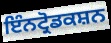
ਇੰਨਟ੍ਰੋਡਕਸ਼ਨ